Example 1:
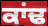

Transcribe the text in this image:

ਕਾਂਢ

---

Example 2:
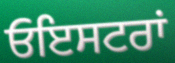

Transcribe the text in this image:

ਓਇਸਟਰਾਂ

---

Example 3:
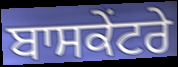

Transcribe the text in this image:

ਬਾਸਕੇਂਟਰੇ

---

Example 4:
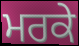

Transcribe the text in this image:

ਮਰਕੇ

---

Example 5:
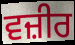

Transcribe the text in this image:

ਵਜ਼ੀਰ